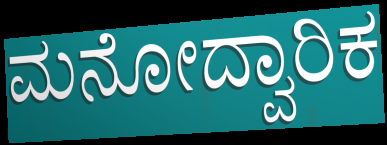
ಮನೋದ್ವಾರಿಕ